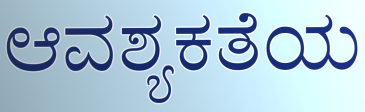
ಆವಶ್ಯಕತೆಯ